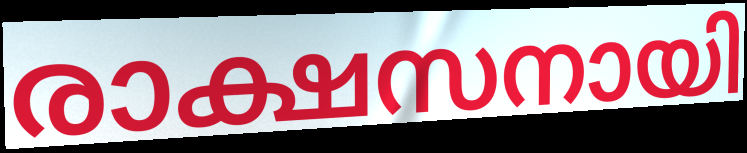
രാക്ഷസനായി